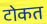
टोकत